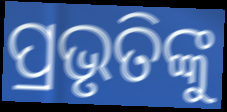
ପ୍ରଭୃତିଙ୍କୁ